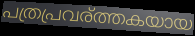
പത്രപ്രവര്ത്തകയായ